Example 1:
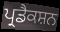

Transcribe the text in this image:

ਪ੍ਰਡੈਕਸ਼ਨ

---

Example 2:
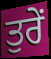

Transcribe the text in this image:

ਤੁਰੇਂ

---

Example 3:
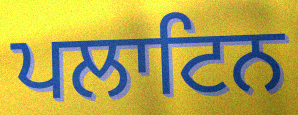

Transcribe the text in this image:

ਪਲਾਟਿਨ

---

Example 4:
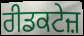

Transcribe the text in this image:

ਰੀਡਕਟੇਜ਼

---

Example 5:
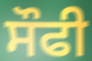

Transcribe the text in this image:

ਸੌਫੀ